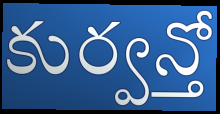
కుర్వన్తో